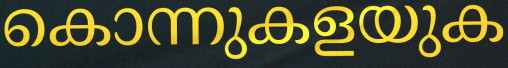
കൊന്നുകളയുക